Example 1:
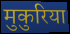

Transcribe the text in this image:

मुकुरिया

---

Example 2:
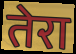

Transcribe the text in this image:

तेरा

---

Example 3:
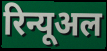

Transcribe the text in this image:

रिन्यूअल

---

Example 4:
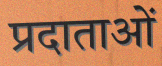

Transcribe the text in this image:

प्रदाताओं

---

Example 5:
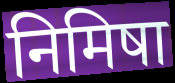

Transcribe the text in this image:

निमिषा